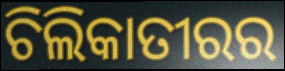
ଚିଲିକାତୀରର